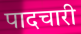
पादचारी